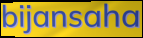
bijansaha